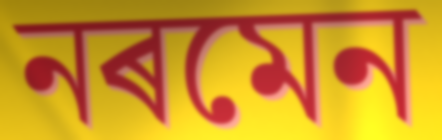
নৰমেন